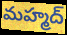
మహ్మద్